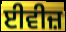
ਈਵੀਜ਼